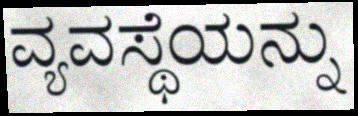
ವ್ಯವಸ್ಥೆಯನ್ನು